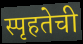
स्पृहतेची